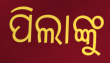
ପିଲାଙ୍କୁ